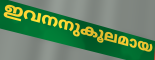
ഇവനനുകൂലമായ